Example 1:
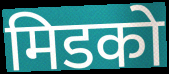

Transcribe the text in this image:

मिडको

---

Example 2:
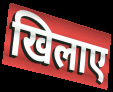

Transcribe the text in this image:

खिलाए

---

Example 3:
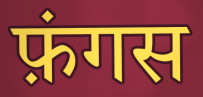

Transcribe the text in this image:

फ़ंगस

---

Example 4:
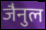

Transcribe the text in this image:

जैनुल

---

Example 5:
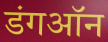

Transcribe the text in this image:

डंगऑन